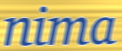
nima